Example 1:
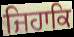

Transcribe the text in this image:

ਜਿਹਾਕਿ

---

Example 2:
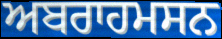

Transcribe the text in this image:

ਅਬਰਾਹਮਸਨ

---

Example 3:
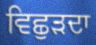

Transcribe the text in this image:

ਵਿਛੁੜਦਾ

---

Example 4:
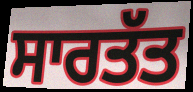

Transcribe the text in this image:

ਸਾਰਤੱਤ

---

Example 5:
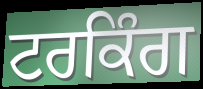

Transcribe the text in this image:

ਟਰਕਿੰਗ